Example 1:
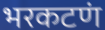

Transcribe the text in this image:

भरकटणं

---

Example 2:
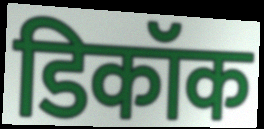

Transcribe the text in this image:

डिकॉक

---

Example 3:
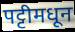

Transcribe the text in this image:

पट्टीमधून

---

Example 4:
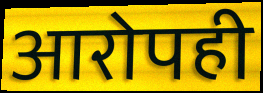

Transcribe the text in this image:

आरोपही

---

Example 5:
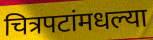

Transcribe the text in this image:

चित्रपटांमधल्या